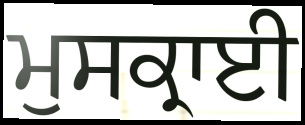
ਮੁਸਕ੍ਰਾਈ